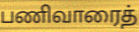
பணிவாரைத்